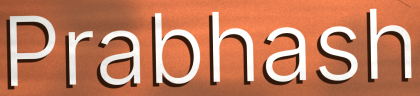
Prabhash